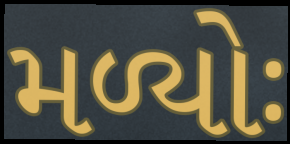
મળ્યોઃ